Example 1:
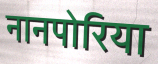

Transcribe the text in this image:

नानपोरिया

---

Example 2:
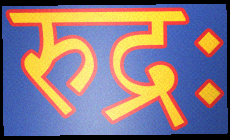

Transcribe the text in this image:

रुद्रः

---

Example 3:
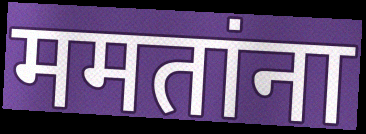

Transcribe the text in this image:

ममतांना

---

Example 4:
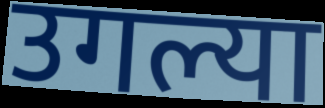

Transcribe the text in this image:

उगल्या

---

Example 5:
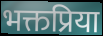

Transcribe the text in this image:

भक्तप्रिया